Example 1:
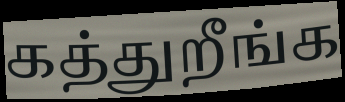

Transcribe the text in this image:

கத்துறீங்க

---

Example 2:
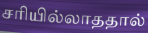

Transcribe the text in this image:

சரியில்லாததால்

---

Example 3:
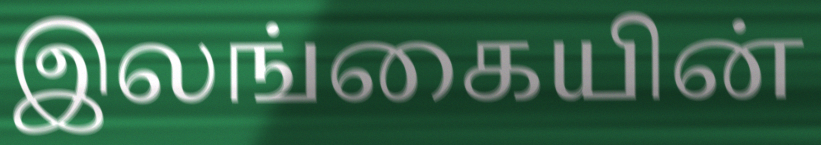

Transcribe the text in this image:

இலங்கையின்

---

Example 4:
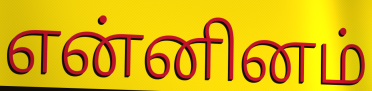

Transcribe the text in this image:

என்னினம்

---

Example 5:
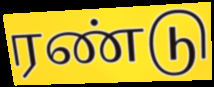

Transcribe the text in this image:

ரண்டு